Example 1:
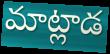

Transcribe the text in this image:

మాట్లాడ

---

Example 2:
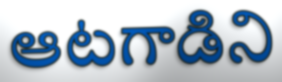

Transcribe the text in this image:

ఆటగాడిని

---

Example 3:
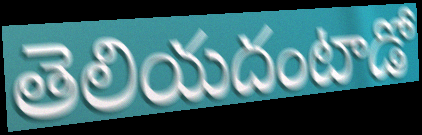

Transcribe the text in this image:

తెలియదంటాడో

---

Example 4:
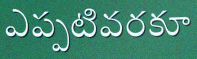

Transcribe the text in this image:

ఎప్పటివరకూ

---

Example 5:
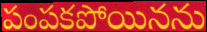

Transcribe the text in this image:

పంపకపోయినను